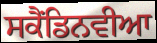
ਸਕੈਂਡਿਨਵੀਆ